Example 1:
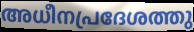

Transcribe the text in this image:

അധീനപ്രദേശത്തു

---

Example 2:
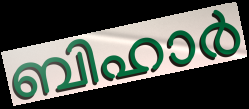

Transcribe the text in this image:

ബിഹാർ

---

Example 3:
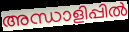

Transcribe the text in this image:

അന്ധാളിപ്പിൽ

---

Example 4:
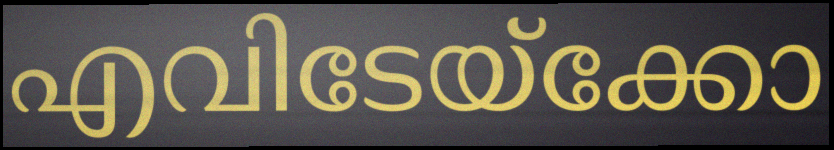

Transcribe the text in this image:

എവിടേയ്ക്കോ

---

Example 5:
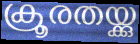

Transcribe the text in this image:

ക്രൂരതയ്ക്കു